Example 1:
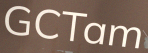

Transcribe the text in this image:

GCTam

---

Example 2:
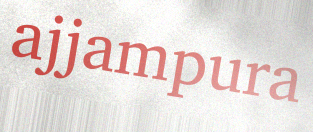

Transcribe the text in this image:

ajjampura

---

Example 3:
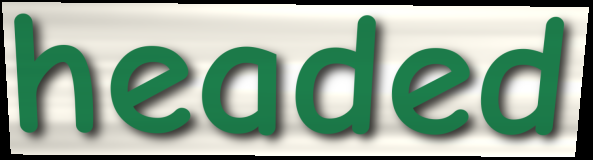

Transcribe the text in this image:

headed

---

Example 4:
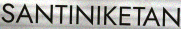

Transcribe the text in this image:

SANTINIKETAN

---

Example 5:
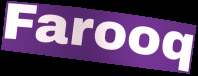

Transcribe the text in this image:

Farooq